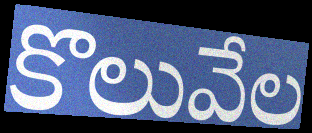
కొలువేల